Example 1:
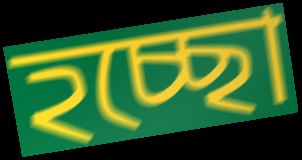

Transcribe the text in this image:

হচ্ছো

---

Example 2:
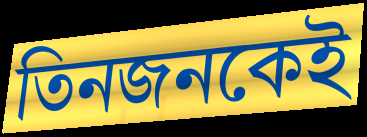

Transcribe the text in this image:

তিনজনকেই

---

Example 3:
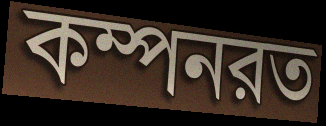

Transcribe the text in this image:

কম্পনরত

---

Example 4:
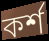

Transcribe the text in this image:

কর্শ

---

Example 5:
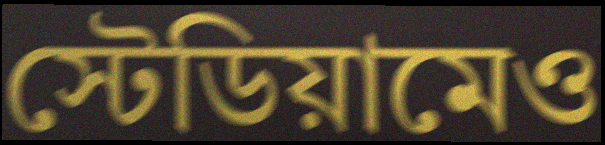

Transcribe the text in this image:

স্টেডিয়ামেও